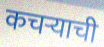
कचर्‍याची